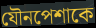
যৌনপেশাকে